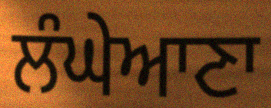
ਲੰਘੇਆਣਾ